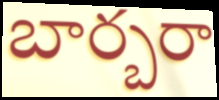
బార్బరా